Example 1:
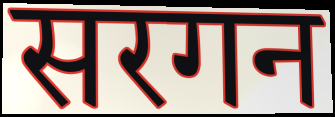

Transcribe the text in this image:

सरगन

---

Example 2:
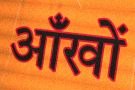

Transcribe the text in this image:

आंँखों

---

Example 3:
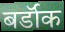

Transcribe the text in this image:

बर्डॉक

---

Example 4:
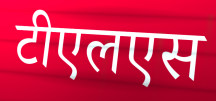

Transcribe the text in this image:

टीएलएस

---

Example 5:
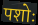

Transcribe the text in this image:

पशोः